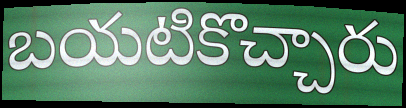
బయటికొచ్చారు